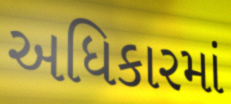
અધિકારમાં